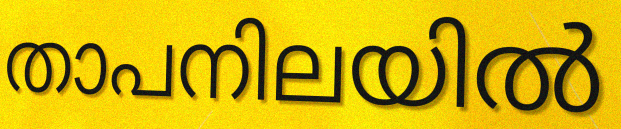
താപനിലയിൽ